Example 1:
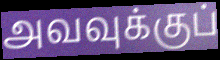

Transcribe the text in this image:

அவவுக்குப்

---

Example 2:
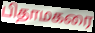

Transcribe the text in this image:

பிதாமகரை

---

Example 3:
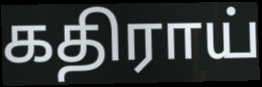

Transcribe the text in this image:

கதிராய்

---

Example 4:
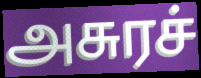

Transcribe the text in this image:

அசுரச்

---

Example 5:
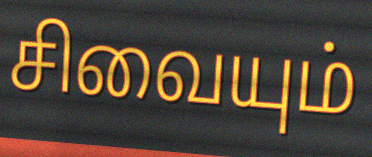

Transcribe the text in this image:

சிவையும்